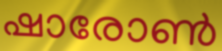
ഷാരോൺ